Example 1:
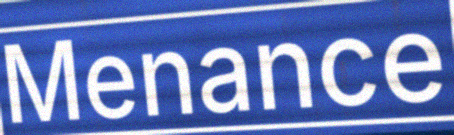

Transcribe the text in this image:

Menance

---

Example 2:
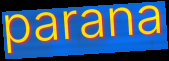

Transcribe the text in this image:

parana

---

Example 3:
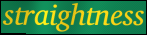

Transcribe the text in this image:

straightness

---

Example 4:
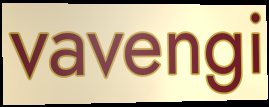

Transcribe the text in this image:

vavengi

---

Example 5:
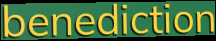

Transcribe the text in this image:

benediction